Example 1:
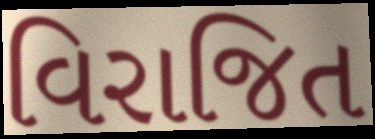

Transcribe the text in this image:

વિરાજિત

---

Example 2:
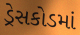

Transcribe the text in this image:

ડ્રેસકોડમાં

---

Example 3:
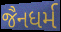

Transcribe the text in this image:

જૈનધર્મ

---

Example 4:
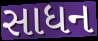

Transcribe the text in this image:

સાધન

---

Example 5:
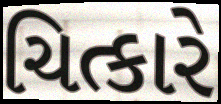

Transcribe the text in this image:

ચિત્કારે